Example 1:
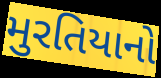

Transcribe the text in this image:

મુરતિયાનો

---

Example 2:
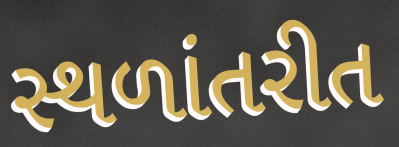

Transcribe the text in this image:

સ્થળાંતરીત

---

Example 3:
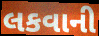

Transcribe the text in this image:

લકવાની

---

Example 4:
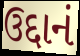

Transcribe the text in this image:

ઉદ્દાનં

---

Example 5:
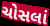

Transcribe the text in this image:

ચોસલાં